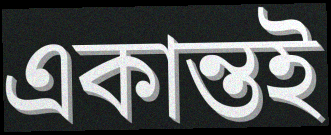
একান্তই